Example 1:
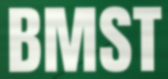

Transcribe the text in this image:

BMST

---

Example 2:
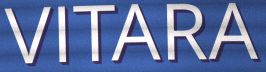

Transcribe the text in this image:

VITARA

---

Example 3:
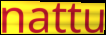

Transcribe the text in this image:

nattu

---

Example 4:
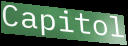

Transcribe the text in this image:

Capitol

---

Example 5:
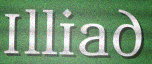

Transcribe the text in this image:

Illiad